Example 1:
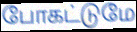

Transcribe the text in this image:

போகட்டுமே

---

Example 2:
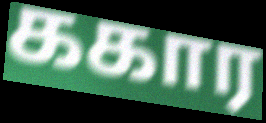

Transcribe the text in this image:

ககார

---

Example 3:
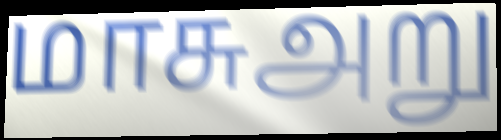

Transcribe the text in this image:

மாசுஅறு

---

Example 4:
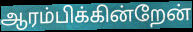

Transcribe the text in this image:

ஆரம்பிக்கின்றேன்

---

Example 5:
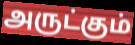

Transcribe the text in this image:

அருட்கும்